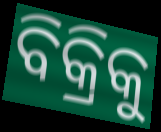
ବିକ୍ରିକୁ